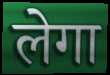
लेगा